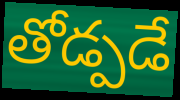
తోడ్పడే